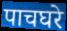
पाचघरे